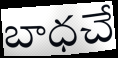
బాధచే